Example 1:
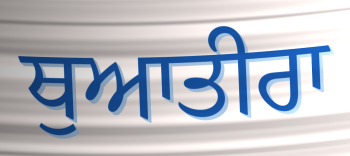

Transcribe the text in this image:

ਥੁਆਤੀਰਾ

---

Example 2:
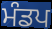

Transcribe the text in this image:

ਮੰਡਪ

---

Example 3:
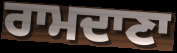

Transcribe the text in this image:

ਰਾਮਦਾਣਾ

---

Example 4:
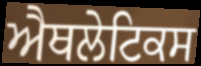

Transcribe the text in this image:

ਐਥਲੇਟਿਕਸ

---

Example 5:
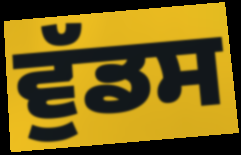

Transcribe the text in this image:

ਵੁੱਡਸ